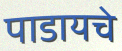
पाडायचे